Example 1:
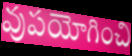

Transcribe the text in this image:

వుపయోగించి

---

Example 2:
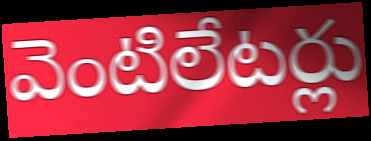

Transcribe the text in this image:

వెంటిలేటర్లు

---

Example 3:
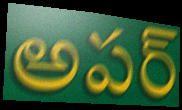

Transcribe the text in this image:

అపర్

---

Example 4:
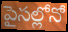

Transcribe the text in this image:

పైసల్లోనో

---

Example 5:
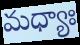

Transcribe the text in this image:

మధ్యాః